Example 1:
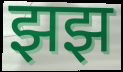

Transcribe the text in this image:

झझ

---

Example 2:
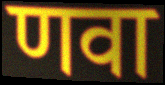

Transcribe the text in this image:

णवा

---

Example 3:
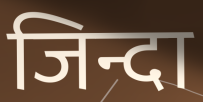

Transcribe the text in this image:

जिन्‍दा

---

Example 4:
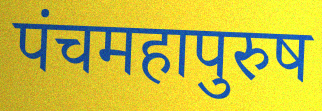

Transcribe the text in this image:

पंचमहापुरुष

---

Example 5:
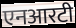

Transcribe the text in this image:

एनआरटी